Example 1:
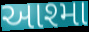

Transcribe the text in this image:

આશ્મા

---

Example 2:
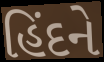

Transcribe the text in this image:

હિંદને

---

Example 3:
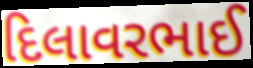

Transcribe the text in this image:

દિલાવરભાઈ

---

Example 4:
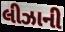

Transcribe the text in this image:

લીઝાની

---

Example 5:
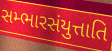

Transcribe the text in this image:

સમ્ભારસંયુત્તાતિ